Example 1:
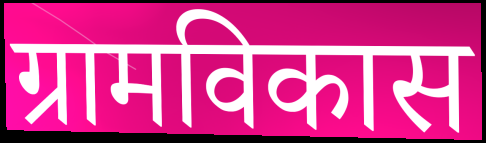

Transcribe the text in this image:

ग्रामविकास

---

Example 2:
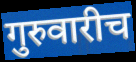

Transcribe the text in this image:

गुरुवारीच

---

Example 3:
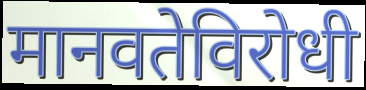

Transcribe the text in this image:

मानवतेविरोधी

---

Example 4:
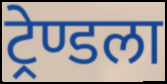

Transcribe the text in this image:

ट्रेण्डला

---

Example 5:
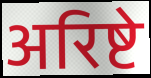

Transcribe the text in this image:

अरिष्टे